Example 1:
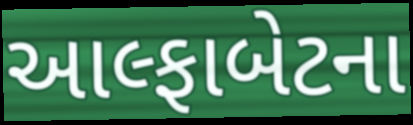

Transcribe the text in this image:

આલ્ફાબેટના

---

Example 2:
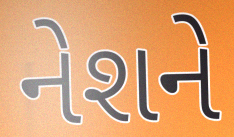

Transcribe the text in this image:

નેશને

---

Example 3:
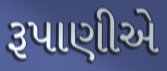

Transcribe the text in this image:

રૂપાણીએ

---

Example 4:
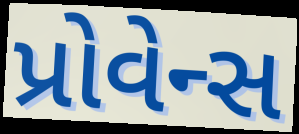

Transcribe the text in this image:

પ્રોવેન્સ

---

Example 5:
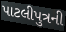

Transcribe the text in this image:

પાટલીપુત્રની